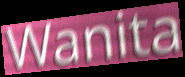
Wanita